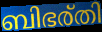
ബിഭര്തി